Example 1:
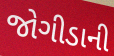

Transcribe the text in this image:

જોગીડાની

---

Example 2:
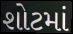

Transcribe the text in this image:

શોટમાં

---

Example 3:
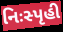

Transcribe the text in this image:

નિઃસ્પૃહી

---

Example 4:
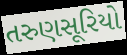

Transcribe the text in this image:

તરુણસૂરિયો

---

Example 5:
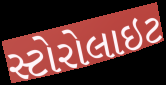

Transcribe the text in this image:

સ્ટોરોલાઇટ